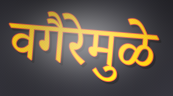
वगैरेमुळे